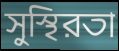
সুস্থিরতা